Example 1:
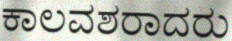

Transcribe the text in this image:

ಕಾಲವಶರಾದರು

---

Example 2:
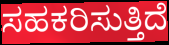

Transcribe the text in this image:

ಸಹಕರಿಸುತ್ತಿದೆ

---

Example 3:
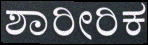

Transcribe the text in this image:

ಶಾರೀರಿಕ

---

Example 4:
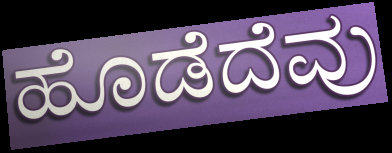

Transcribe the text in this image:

ಹೊಡೆದೆವು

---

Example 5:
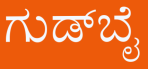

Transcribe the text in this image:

ಗುಡ್‌ಬೈ